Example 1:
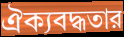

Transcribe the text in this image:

ঐক্যবদ্ধতার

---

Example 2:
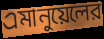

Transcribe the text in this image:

এমানুয়েলের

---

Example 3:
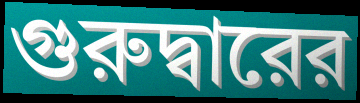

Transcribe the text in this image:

গুরুদ্বারের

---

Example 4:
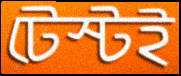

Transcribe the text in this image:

টেস্টই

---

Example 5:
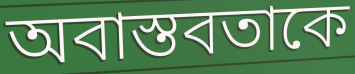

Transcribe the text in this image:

অবাস্তবতাকে